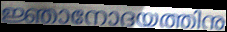
ജ്ഞാനോദയത്തിനു